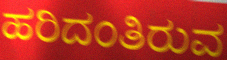
ಹರಿದಂತಿರುವ